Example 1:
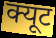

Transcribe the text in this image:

क्यूट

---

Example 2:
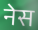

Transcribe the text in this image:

नेस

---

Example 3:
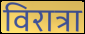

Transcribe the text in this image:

विरात्रा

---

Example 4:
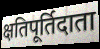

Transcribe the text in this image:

क्षतिपूर्तिदाता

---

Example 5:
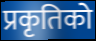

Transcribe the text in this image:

प्रकृतिको